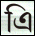
এি